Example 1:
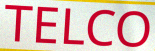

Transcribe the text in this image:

TELCO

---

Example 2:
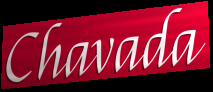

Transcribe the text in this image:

Chavada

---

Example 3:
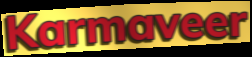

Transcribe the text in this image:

Karmaveer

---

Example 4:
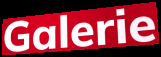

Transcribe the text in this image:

Galerie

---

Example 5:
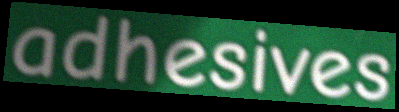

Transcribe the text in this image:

adhesives